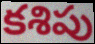
కశిపు